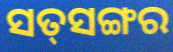
ସତ୍‌ସଙ୍ଗର